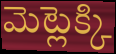
మెట్లెక్కి